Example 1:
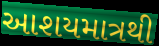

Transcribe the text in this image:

આશયમાત્રથી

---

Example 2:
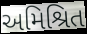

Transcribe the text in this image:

અમિશ્રિત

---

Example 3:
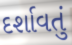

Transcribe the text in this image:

દર્શાવતું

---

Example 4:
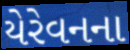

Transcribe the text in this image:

યેરેવનના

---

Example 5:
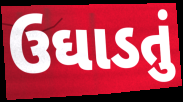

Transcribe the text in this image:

ઉઘાડતું